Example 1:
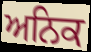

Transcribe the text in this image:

ਅਨਿਕ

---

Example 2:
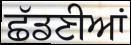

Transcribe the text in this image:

ਛੱਡਣੀਆਂ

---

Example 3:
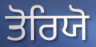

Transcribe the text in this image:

ਤੋਰਿਯੋ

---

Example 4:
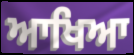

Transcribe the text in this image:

ਆਖਿਆ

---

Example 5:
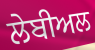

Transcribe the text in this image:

ਲੇਬੀਅਲ